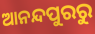
ଆନନ୍ଦପୁରରୁ